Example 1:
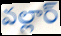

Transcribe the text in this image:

వల్లార్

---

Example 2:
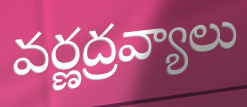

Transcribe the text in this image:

వర్ణద్రవ్యాలు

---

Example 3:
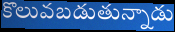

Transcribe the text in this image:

కొలువబడుతున్నాడు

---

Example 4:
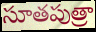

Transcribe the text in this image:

సూతపుత్రా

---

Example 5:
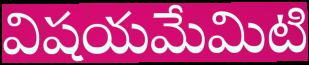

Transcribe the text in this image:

విషయమేమిటి